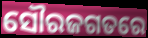
ସୌରଜଗତରେ